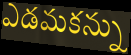
ఎడమకన్ను